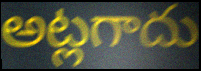
అట్లగాదు